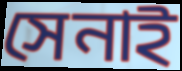
সেনাই